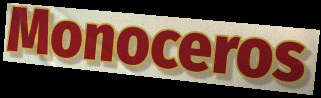
Monoceros